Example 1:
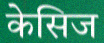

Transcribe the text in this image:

केसिज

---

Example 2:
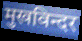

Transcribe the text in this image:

मुखविन्दर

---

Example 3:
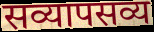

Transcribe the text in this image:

सव्यापसव्य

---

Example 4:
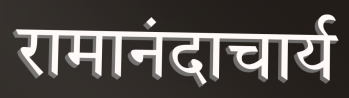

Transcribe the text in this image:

रामानंदाचार्य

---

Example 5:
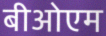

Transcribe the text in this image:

बीओएम